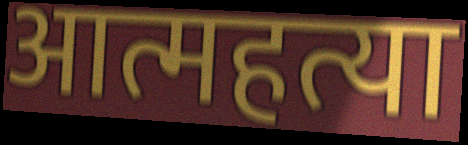
आत्महत्या